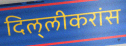
दिल्लीकरांस